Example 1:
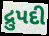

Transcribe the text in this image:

દ્રુપદી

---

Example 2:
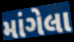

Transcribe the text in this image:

માંગેલા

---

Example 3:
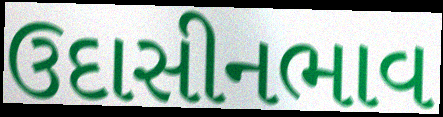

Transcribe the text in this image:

ઉદાસીનભાવ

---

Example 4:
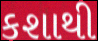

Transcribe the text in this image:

કશાથી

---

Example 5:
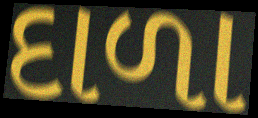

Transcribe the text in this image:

દાળા